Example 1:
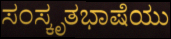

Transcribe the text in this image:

ಸಂಸ್ಕೃತಭಾಷೆಯು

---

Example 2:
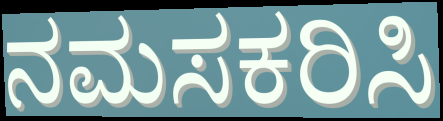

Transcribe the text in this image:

ನಮಸಕರಿಸಿ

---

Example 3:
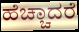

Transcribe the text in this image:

ಹೆಚ್ಚಾದರೆ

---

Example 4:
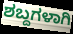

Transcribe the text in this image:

ಶಬ್ದಗಳಾಗಿ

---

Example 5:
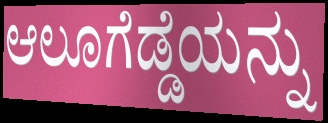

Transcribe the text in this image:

ಆಲೂಗೆಡ್ಡೆಯನ್ನು